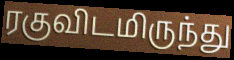
ரகுவிடமிருந்து